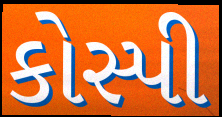
કોસ્પી